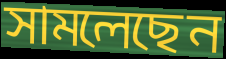
সামলেছেন